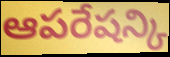
ఆపరేషన్కి